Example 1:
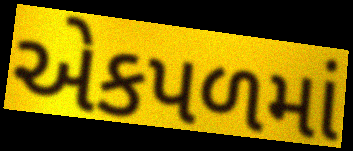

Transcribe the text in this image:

એકપળમાં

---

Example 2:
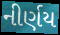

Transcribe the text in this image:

નીર્ણય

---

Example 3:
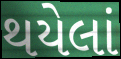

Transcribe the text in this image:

થયેલાં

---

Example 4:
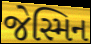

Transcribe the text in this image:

જેસ્મિન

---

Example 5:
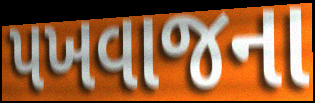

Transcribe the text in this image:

પખવાજના